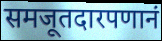
समजूतदारपणानं